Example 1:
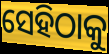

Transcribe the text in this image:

ସେହିଠାକୁ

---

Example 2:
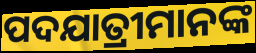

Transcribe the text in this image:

ପଦଯାତ୍ରୀମାନଙ୍କ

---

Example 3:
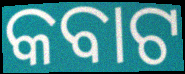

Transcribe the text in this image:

କବାଟ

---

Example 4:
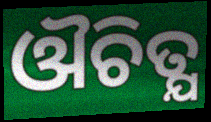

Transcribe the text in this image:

ଔଚିତ୍ଯ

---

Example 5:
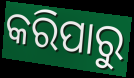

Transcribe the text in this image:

କରିପାରୁ